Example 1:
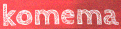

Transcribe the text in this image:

komema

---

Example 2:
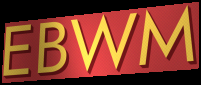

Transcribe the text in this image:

EBWM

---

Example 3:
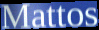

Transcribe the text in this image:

Mattos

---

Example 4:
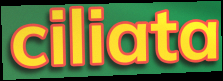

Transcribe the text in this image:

ciliata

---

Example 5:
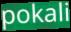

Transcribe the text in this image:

pokali